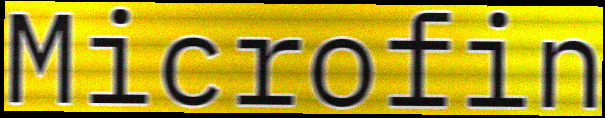
Microfin